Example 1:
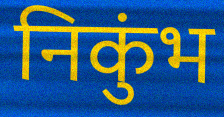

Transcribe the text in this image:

निकुंभ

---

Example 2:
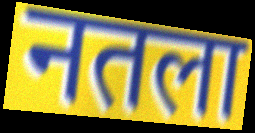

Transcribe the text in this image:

नतला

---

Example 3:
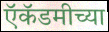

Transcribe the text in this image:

ऍकॅडमीच्या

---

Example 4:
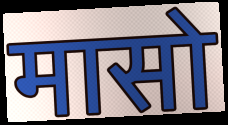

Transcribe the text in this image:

मासो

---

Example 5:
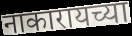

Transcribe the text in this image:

नाकारायच्या